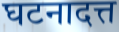
घटनादत्त